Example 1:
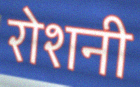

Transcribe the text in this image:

रोशनी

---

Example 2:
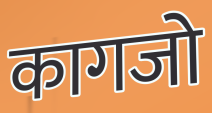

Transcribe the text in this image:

कागजो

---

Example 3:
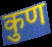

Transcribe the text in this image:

कुण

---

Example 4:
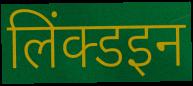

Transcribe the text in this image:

लिंक्डइन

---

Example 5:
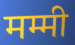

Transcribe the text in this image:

मम्मी